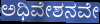
ಅಧಿವೇಶನವೇ